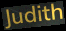
Judith